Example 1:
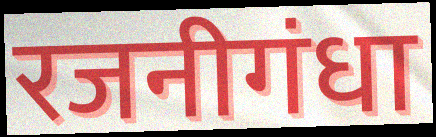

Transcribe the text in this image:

रजनीगंधा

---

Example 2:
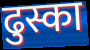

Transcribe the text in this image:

ढुस्का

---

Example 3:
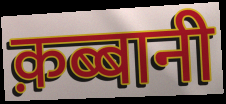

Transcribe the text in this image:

क़ब्बानी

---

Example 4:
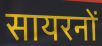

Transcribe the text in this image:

सायरनों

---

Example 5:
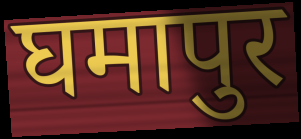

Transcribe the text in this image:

घमापुर